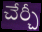
చేర్చీ